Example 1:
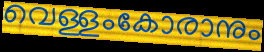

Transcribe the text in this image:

വെള്ളംകോരാനും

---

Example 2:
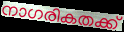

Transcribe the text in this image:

നാഗരികതക്ക്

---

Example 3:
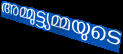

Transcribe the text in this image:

അമ്മുട്ട്യമ്മയുടെ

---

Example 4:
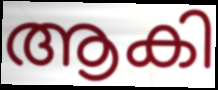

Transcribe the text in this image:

ആകി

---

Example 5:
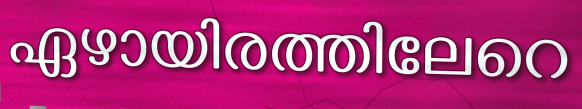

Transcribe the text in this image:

ഏഴായിരത്തിലേറെ